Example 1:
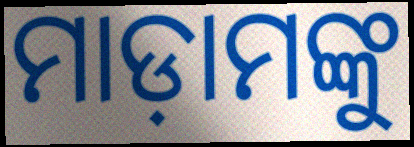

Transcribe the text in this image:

ମାଡ଼ାମଙ୍କୁ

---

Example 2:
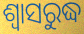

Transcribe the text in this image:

ଶ୍ୱାସରୁଦ୍ଧ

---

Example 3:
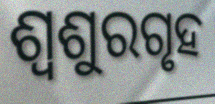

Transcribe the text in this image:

ଶ୍ୱଶୁରଗୃହ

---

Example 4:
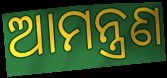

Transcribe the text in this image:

ଆମନ୍ତ୍ରଣ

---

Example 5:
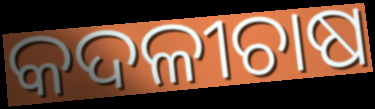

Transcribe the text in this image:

କଦଳୀଚାଷ